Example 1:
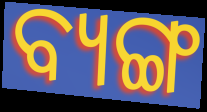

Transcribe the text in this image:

ବ୍ୟଙ୍ଗ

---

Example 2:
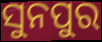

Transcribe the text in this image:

ସୁନପୁର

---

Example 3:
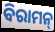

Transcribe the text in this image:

ବିରାମନ୍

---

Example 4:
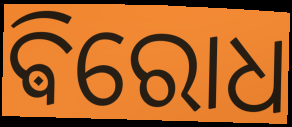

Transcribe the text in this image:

ଵିରୋଧ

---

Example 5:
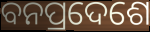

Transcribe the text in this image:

ବନପ୍ରଦେଶେ